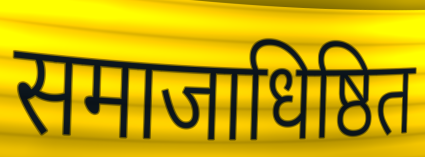
समाजाधिष्ठित